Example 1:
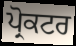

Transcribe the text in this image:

ਪ੍ਰੋਕਟਰ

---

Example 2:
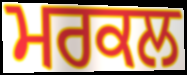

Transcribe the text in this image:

ਮਰਕਲ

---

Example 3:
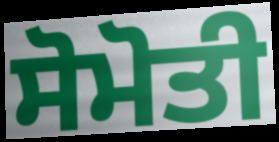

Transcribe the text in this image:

ਸੋਮੋਤੀ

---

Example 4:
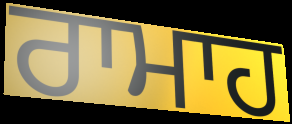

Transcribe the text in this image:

ਰਾਮਾਹ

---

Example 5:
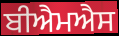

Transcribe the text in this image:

ਬੀਐਮਐਸ